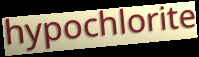
hypochlorite